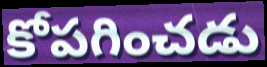
కోపగించడు